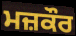
ਮਜ਼ਕੌਰ